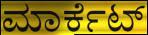
ಮಾರ್ಕೆಟ್